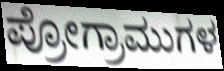
ಪ್ರೋಗ್ರಾಮುಗಳ